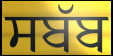
ਸਬੱਬ